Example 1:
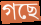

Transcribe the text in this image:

গছে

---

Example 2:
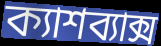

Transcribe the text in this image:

ক্যাশব্যাক্স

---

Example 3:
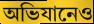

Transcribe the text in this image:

অভিযানেও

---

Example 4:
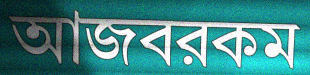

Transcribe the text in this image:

আজবরকম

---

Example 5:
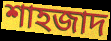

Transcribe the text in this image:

শাহজাদ